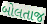
બોલતાજ